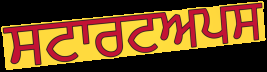
ਸਟਾਰਟਅਪਸ